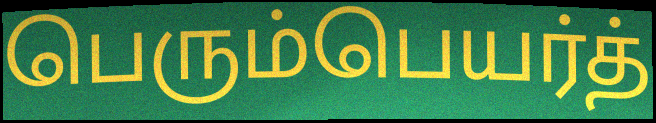
பெரும்பெயர்த்